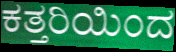
ಕತ್ತರಿಯಿಂದ